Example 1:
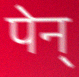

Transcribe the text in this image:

पेन्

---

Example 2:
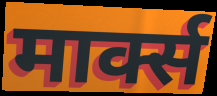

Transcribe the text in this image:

मार्क्स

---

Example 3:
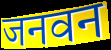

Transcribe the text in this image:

जनवन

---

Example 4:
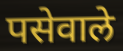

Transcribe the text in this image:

पसेवाले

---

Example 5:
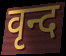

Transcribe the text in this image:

वृन्द